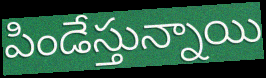
పిండేస్తున్నాయి